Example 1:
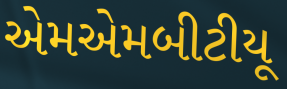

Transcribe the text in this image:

એમએમબીટીયૂ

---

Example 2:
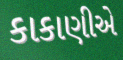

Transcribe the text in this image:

કાકાણીએ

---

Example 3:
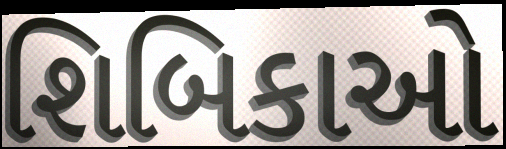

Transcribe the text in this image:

શિબિકાઓ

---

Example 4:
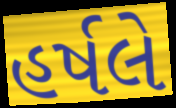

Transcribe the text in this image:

હર્ષલે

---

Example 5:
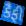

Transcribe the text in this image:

કૈફી